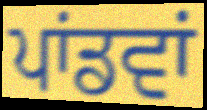
ਪਾਂਡਵਾਂ